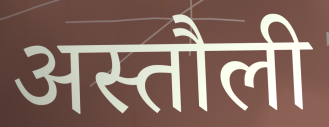
अस्तौली